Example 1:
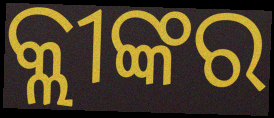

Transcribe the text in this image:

କ୍ଲୀଙ୍କର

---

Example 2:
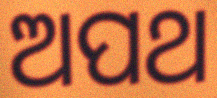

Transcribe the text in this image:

ଅପଥ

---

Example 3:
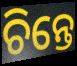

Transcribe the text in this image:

ଚିନ୍ତେ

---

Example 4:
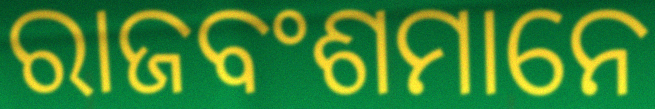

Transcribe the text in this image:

ରାଜବଂଶମାନେ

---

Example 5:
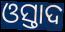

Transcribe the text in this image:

ଓସ୍ତାଦ